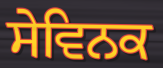
ਸੇਵਿਨਕ